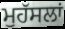
ਮੁਹੱਸਲਾਂ